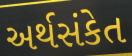
અર્થસંકેત